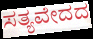
ಸತ್ಯವೇದದ